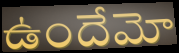
ఉందేమో